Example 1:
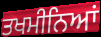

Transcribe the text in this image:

ਤਖਮੀਨਿਆਂ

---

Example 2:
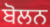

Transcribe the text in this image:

ਬੋਲਨ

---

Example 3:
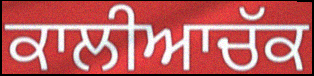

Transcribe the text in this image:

ਕਾਲੀਆਚੱਕ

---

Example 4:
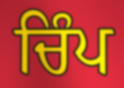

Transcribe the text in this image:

ਚਿੰਪ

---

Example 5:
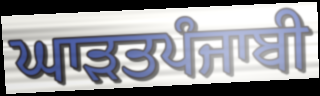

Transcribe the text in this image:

ਘਾੜਤਪੰਜਾਬੀ